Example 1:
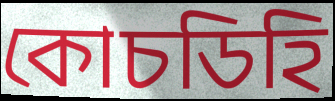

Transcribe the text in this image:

কোচডিহি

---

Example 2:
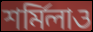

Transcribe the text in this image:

শর্মিলাও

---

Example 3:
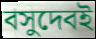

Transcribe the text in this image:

বসুদেবই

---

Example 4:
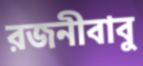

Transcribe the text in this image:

রজনীবাবু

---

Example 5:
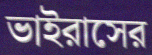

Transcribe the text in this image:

ভাইরাসের